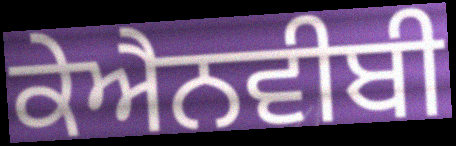
ਕੇਐਨਵੀਬੀ